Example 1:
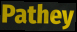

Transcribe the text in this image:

Pathey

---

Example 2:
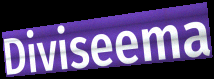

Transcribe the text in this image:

Diviseema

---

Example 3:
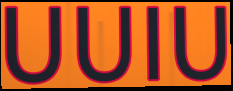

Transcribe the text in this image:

UUIU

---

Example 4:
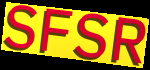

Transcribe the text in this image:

SFSR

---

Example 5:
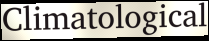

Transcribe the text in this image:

Climatological